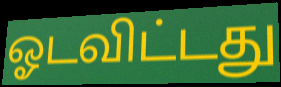
ஓடவிட்டது